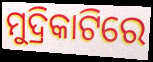
ମୁଦ୍ରିକାଟିରେ